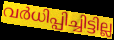
വർധിപ്പിച്ചിട്ടില്ല